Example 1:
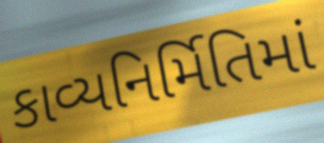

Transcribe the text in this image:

કાવ્યનિર્મિતિમાં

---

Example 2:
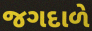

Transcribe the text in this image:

જગદાળે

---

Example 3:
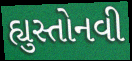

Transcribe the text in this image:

હ્યુસ્તોનવી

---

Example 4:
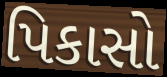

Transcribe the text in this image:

પિકાસો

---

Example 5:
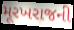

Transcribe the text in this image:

મૂરખરાજની